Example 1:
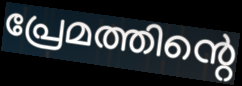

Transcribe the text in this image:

പ്രേമത്തിന്റെ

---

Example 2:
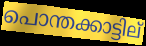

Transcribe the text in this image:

പൊന്തക്കാട്ടില്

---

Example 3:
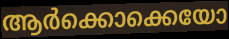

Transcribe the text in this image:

ആർക്കൊക്കെയോ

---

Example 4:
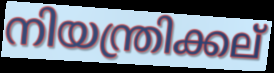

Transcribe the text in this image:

നിയന്ത്രിക്കല്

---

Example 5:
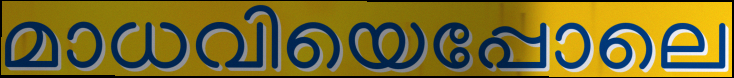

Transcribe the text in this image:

മാധവിയെപ്പോലെ